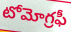
టోమోగ్రఫీ